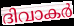
ദിവാകർ